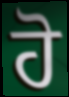
ਹੋ